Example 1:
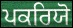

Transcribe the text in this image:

ਪਕਰਿਯੋ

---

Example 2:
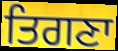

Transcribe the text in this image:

ਤਿਗਣਾ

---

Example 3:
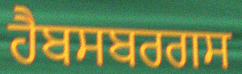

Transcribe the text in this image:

ਹੈਬਸਬਰਗਸ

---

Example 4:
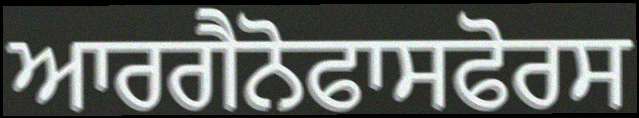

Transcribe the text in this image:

ਆਰਗੈਨੋਫਾਸਫੋਰਸ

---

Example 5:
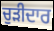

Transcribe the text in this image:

ਚੁੜੀਦਾਰ